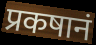
प्रकषानं